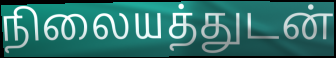
நிலையத்துடன்